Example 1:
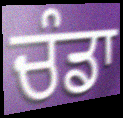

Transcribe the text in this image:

ਚੰਡਾ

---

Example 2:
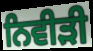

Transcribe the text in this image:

ਨਿਵੀੜੀ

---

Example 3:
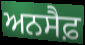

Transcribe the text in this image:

ਅਨਸੈਫ਼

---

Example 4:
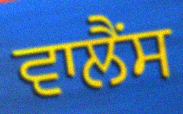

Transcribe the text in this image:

ਵਾਲੈਂਸ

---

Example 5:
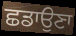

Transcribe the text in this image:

ਛਡਾਉਣਾ